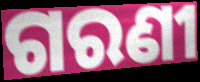
ଗରଣୀ